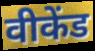
वीकेंड